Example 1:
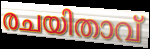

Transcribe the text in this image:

രചയിതാവ്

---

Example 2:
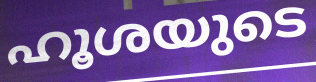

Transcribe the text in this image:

ഹൂശയുടെ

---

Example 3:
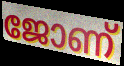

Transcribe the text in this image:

ജോണ്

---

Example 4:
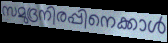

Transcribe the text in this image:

സമുദ്രനിരപ്പിനെക്കാൾ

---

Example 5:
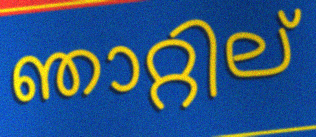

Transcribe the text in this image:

ഞാറ്റില്